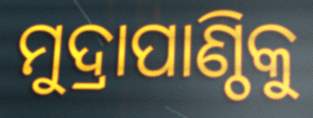
ମୁଦ୍ରାପାଣ୍ଠିକୁ